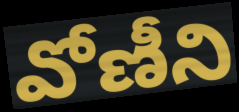
వోణీని